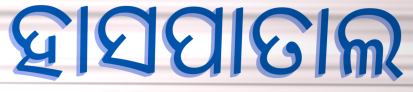
ହାସପାତାଲ